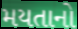
મયતાનો